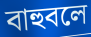
বাহুবলে